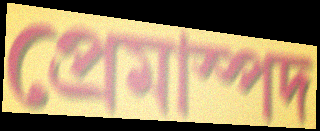
প্রেমাস্পদ